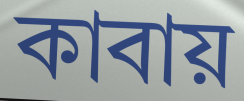
কাবায়